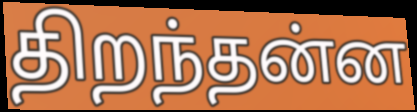
திறந்தன்ன